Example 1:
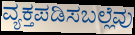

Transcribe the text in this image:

ವ್ಯಕ್ತಪಡಿಸಬಲ್ಲೆವು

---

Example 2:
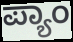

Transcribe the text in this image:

ಪ್ಯಾಂ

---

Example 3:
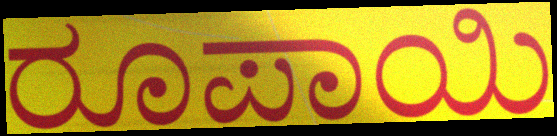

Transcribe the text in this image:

ರೂಪಾಯಿ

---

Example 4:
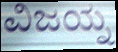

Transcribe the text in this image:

ವಿಜಯ್ನ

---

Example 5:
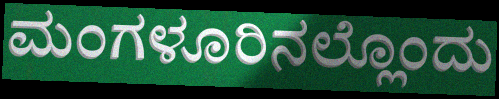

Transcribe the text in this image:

ಮಂಗಳೂರಿನಲ್ಲೊಂದು